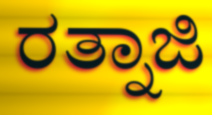
ರತ್ನಾಜಿ